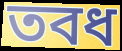
তবধ